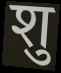
शु